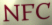
NFC